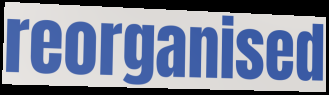
reorganised